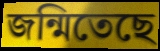
জন্মিতেছে